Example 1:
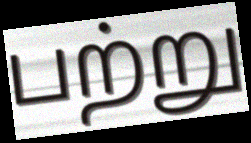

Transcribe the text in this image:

பற்று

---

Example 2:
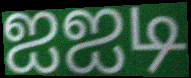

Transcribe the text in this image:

ஐஐடி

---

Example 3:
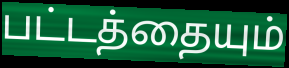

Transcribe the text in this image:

பட்டத்தையும்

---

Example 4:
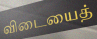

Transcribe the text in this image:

விடையைத்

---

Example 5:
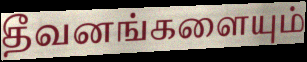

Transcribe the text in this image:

தீவனங்களையும்